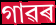
গাৱৰ